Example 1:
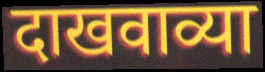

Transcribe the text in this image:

दाखवाव्या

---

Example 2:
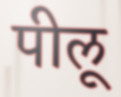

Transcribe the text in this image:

पीलू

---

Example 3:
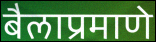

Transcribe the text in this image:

बैलाप्रमाणे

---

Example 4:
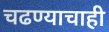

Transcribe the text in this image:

चढण्याचाही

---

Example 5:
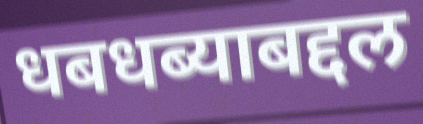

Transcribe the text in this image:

धबधब्याबद्दल